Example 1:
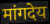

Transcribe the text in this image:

मांगदेय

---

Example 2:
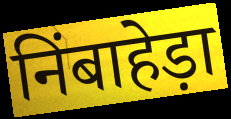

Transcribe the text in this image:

निंबाहेड़ा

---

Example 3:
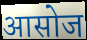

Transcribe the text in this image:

आसोज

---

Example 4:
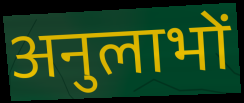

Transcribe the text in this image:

अनुलाभों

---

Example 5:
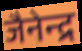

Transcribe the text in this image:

जैनेन्द्र